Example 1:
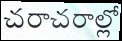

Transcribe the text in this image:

చరాచరాల్లో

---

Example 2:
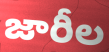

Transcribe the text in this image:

జారీల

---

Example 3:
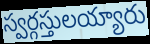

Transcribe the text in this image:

స్వర్గస్తులయ్యారు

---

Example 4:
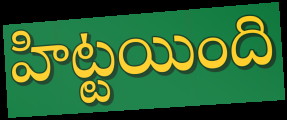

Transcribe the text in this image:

హిట్టయింది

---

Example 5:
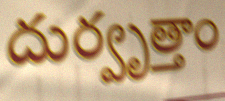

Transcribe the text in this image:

దుర్వృత్తాం